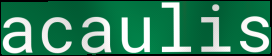
acaulis